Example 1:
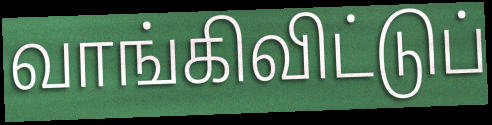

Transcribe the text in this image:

வாங்கிவிட்டுப்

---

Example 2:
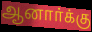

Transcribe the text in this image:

ஆனார்க்கு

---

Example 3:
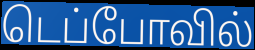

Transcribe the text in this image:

டெப்போவில்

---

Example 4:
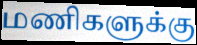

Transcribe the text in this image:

மணிகளுக்கு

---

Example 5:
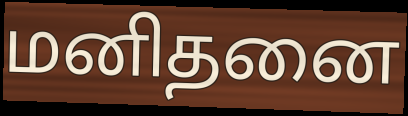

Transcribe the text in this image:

மனிதனை